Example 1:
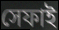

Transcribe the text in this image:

সেফাই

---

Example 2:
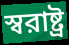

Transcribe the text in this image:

স্বরাষ্ট্র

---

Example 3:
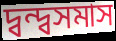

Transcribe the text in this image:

দ্বন্দ্বসমাস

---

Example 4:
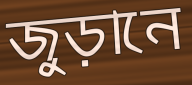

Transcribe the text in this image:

জুড়ানে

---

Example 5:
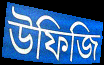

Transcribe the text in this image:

উফিজি